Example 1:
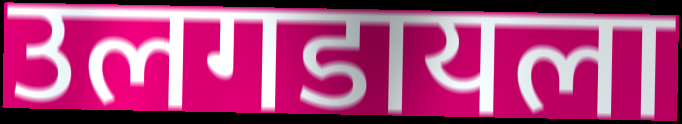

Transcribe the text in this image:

उलगडायला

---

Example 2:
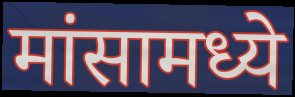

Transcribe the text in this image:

मांसामध्ये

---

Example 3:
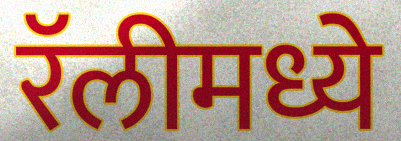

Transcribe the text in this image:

रॅलीमध्ये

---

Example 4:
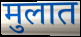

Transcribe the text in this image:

मुलात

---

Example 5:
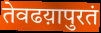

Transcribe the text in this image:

तेवढय़ापुरतं